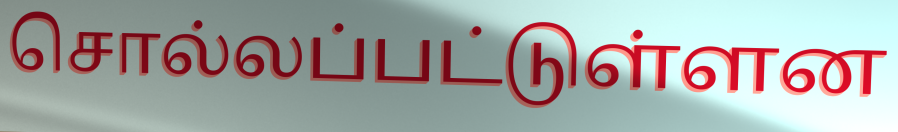
சொல்லப்பட்டுள்ளன